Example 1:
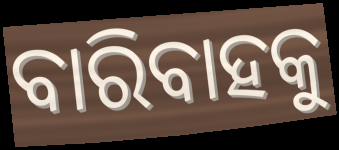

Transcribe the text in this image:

ବାରିବାହକୁ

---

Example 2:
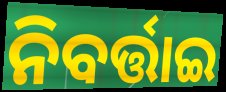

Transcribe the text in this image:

ନିବର୍ତ୍ତାଇ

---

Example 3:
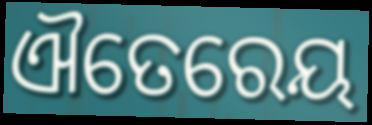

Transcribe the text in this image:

ଐତେରେୟ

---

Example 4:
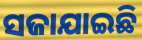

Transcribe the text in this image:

ସଜାଯାଇଛି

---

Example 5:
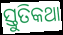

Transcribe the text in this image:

ସ୍ତୁତିକଥା